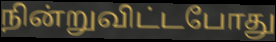
நின்றுவிட்டபோது